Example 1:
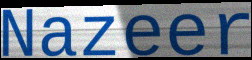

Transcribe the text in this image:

Nazeer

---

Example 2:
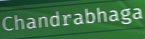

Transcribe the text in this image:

Chandrabhaga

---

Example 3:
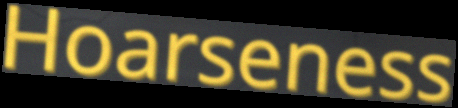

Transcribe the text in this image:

Hoarseness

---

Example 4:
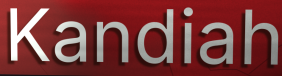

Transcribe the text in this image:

Kandiah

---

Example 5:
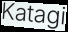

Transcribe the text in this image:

Katagi